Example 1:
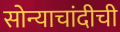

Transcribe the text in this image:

सोन्याचांदीची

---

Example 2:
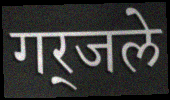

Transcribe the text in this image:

गर्जले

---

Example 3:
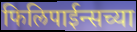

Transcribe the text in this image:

फिलिपाईन्सच्या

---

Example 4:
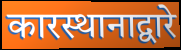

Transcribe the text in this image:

कारस्थानाद्वारे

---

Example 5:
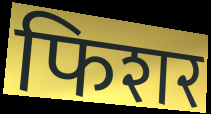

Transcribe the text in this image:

फिशर